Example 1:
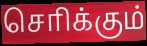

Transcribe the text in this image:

செரிக்கும்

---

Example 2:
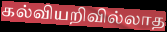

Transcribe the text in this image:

கல்வியறிவில்லாத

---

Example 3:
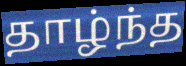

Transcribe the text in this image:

தாழ்ந்த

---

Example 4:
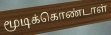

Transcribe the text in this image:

மூடிக்கொண்டாள்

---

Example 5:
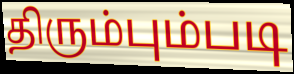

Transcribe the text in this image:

திரும்பும்படி